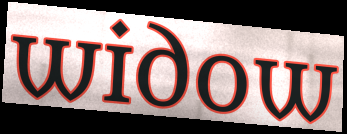
widow